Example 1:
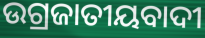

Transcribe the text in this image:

ଉଗ୍ରଜାତୀୟବାଦୀ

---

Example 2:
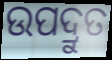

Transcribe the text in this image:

ଉପଦ୍ରୁତ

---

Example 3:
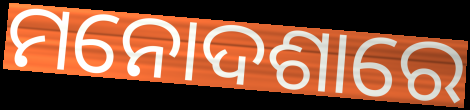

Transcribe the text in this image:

ମନୋଦଶାରେ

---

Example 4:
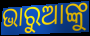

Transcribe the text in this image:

ଭାରୁଆଙ୍କୁ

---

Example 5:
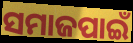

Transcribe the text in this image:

ସମାଜପାଇଁ